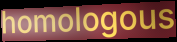
homologous